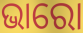
ଭାରୋ